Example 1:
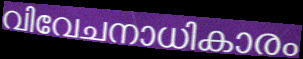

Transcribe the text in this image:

വിവേചനാധികാരം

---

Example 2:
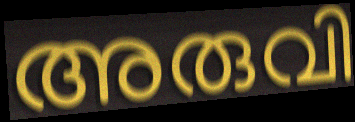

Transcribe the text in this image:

അരുവി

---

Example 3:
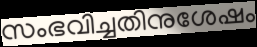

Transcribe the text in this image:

സംഭവിച്ചതിനുശേഷം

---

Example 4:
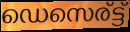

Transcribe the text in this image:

ഡെസെര്ട്ട്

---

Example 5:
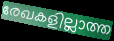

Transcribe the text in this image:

രേഖകളില്ലാത്ത